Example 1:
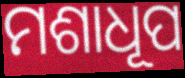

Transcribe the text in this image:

ମଶାଧୂପ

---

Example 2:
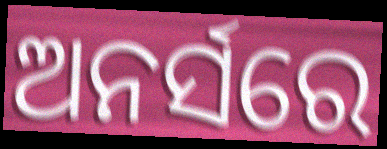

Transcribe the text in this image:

ଅନର୍ସରେ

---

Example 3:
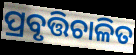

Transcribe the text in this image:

ପ୍ରବୃତ୍ତିଚାଳିତ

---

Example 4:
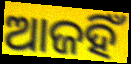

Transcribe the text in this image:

ଆଜହିଁ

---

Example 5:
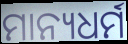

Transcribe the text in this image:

ମାନ୍ୟଧର୍ମ